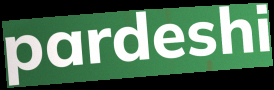
pardeshi